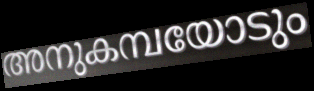
അനുകമ്പയോടും